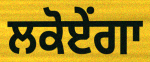
ਲਕੋਏਂਗਾ